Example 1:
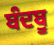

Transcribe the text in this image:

ਬੰਦਬੂ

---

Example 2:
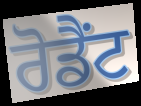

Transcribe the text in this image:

ਰੋਡੈਂਟ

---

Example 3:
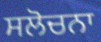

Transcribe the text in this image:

ਸਲੋਚਨਾ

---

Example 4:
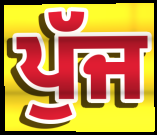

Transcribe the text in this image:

ਪੁੱਜ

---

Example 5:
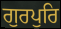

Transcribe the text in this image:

ਗੁਰਪੁਰਿ